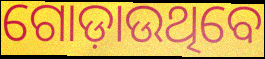
ଗୋଡ଼ାଉଥିବେ